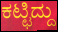
ಕಟ್ಟಿದ್ದು